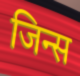
जिन्‍स